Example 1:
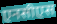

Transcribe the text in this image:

एनसीएस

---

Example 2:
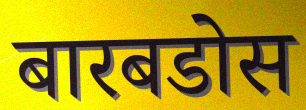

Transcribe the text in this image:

बारबडोस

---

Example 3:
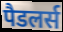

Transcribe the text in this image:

पैडलर्स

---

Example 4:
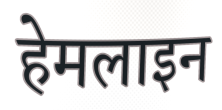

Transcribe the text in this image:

हेमलाइन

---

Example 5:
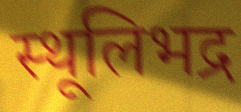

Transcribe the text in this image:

स्थूलिभद्र